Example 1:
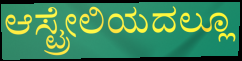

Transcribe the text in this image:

ಆಸ್ಟ್ರೇಲಿಯದಲ್ಲೂ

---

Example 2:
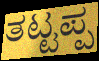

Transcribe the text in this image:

ತಟ್ಟಪ್ಪ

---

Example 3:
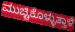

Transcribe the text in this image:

ಮುಚ್ಚಿಕೊಳ್ಳುತ್ತಾಳೆ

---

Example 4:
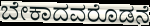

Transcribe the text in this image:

ಬೇಕಾದವರೊಡನೆ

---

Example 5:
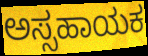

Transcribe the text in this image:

ಅಸ್ಸಹಾಯಕ